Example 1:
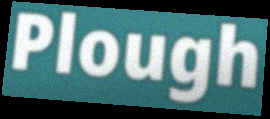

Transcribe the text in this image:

Plough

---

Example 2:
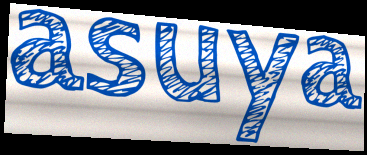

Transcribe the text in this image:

asuya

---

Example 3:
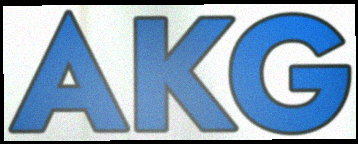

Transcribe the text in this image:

AKG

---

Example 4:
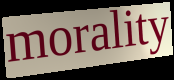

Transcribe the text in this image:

morality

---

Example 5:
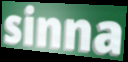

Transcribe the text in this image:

sinna